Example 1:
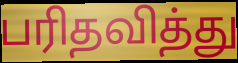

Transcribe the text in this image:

பரிதவித்து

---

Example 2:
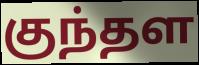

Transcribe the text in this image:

குந்தள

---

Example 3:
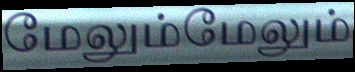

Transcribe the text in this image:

மேலும்மேலும்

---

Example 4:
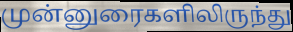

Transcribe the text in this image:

முன்னுரைகளிலிருந்து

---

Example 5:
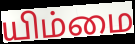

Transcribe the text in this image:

யிம்மை